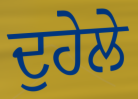
ਦੁਹੇਲੇ